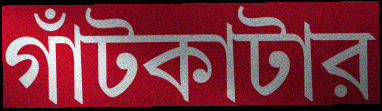
গাঁটকাটার